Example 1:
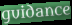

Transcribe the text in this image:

guidance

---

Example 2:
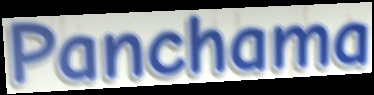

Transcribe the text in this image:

Panchama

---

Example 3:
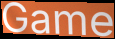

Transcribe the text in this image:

Game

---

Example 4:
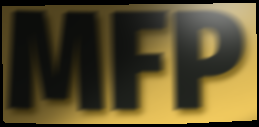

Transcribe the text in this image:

MFP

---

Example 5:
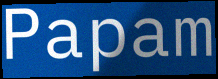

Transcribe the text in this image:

Papam